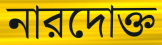
নারদোক্ত